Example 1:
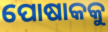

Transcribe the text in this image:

ପୋଷାକକୁ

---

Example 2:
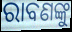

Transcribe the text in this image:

ରାବଣଙ୍କୁ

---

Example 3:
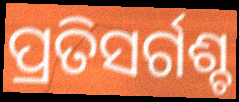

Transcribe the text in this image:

ପ୍ରତିସର୍ଗଶ୍ଚ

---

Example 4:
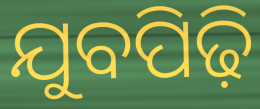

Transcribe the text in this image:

ଯୁବପିଢ଼ି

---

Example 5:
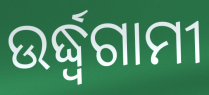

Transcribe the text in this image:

ଉର୍ଦ୍ଧ୍ୱଗାମୀ